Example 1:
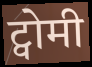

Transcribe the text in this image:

ट्वोमी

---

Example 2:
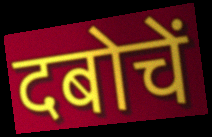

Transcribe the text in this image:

दबोचें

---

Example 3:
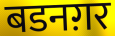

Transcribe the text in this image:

बडनग़र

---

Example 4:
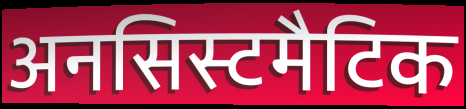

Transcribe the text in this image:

अनसिस्टमैटिक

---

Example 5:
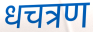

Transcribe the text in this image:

धचत्रण